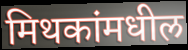
मिथकांमधील